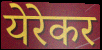
येरेकर